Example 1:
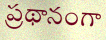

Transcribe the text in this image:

ప్రథానంగా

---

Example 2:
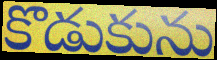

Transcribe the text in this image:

కొడుకును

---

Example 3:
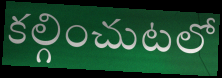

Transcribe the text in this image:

కల్గించుటలో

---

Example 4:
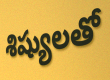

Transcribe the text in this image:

శిష్యులతో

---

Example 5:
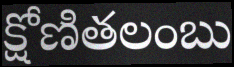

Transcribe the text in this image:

క్షోణితలంబు